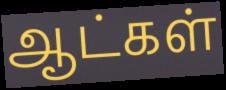
ஆட்கள்